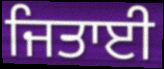
ਜਿਤਾਈ